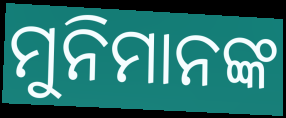
ମୁନିମାନଙ୍କ